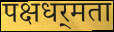
पक्षधर्मता